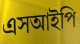
এসআইপি